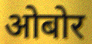
ओबोर